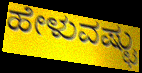
ಹೇಳುವಷ್ಟು